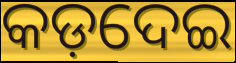
କଡ଼ଦେଇ